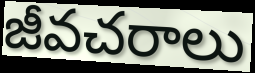
జీవచరాలు